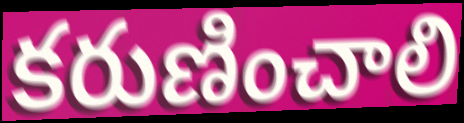
కరుణించాలి